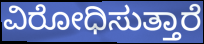
ವಿರೋಧಿಸುತ್ತಾರೆ